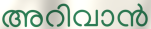
അറിവാൻ